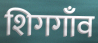
शिगगाँव